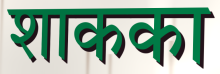
शाकका